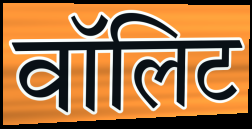
वॉलिट